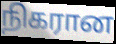
நிகரான